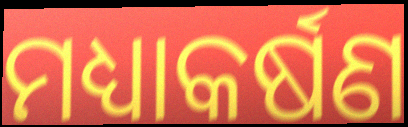
ମଧ୍ୟାକର୍ଷଣ